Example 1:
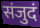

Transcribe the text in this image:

संजुदं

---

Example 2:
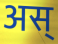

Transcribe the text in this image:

अस्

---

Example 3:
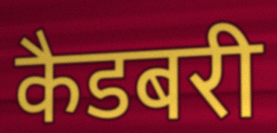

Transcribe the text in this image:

कैडबरी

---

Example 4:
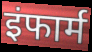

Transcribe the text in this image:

इंफार्म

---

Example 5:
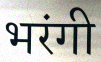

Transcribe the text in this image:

भरंगी